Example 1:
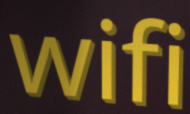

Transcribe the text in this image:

wifi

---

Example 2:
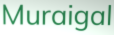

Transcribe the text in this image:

Muraigal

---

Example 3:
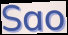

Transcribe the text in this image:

Sao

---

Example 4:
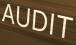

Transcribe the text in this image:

AUDIT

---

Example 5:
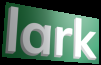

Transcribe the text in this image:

lark